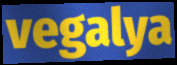
vegalya